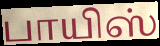
பாயிஸ்